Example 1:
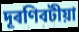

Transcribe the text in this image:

দূৰণিবটীয়া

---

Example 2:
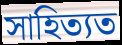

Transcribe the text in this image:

সাহিত্যত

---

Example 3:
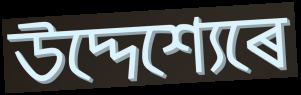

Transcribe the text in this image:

উদ্দেশ্যেৰে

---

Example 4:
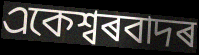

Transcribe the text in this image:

একেশ্বৰবাদৰ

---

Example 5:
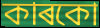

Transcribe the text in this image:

কাৰকো